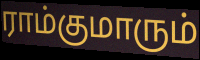
ராம்குமாரும்